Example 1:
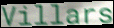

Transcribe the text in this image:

Villars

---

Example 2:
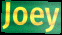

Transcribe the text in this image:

Joey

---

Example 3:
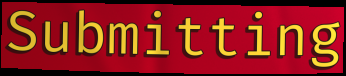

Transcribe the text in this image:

Submitting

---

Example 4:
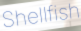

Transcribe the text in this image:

Shellfish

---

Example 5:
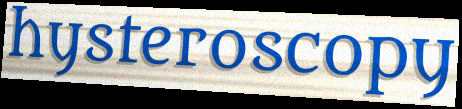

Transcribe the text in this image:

hysteroscopy